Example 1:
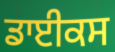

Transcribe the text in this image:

ਡਾਈਕਸ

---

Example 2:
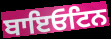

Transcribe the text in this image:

ਬਾਇਓਟਿਨ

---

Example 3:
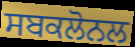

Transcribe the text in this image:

ਸਬਕਲੋਨਲ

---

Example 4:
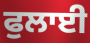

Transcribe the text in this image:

ਫੁਲਾਈ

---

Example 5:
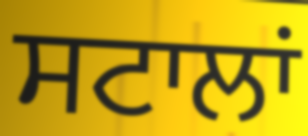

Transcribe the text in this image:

ਸਟਾਲਾਂ